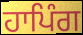
ਹਾਪਿੰਗ